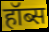
हॉब्स